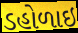
ડહોળાઇ